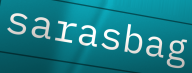
sarasbag